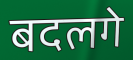
बदलगे